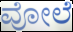
ವೋಲೆ